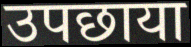
उपछाया